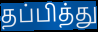
தப்பித்து